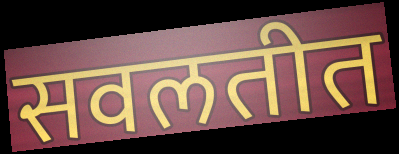
सवलतीत